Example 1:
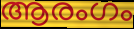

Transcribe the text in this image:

ആരംഗം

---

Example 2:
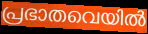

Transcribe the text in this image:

പ്രഭാതവെയിൽ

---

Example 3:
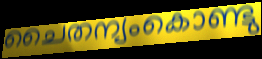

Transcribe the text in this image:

ചൈതന്യംകൊണ്ടു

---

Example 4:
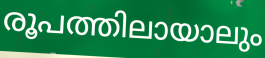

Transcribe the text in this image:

രൂപത്തിലായാലും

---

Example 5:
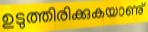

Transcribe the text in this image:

ഉടുത്തിരിക്കുകയാണു്